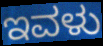
ಇವಳು